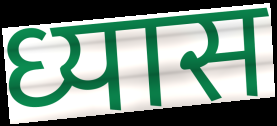
ध्यास